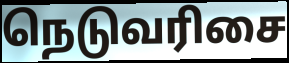
நெடுவரிசை